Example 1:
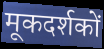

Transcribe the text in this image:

मूकदर्शकों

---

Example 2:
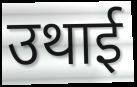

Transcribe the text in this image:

उथाई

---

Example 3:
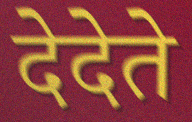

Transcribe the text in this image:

देदेते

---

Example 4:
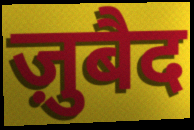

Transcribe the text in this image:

ज़ुबैद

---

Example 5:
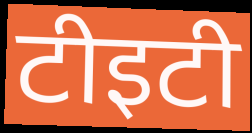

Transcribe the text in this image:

टीइटी